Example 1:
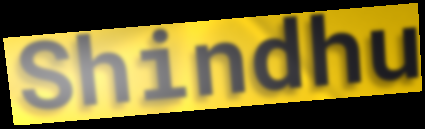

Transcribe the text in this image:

Shindhu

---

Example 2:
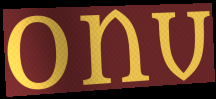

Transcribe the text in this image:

onu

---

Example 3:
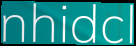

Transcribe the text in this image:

nhidcl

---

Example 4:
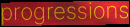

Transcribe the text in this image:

progressions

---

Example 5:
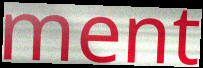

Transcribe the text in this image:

ment